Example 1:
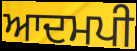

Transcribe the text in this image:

ਆਦਮਪੀ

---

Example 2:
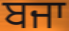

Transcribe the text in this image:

ਬਜਾ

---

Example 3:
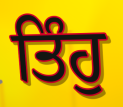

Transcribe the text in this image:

ਤਿੰਹੁ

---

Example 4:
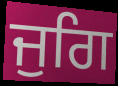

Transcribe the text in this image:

ਜੁਗਿ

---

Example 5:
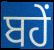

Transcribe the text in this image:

ਬਹੇਂ